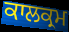
ਕਾਲਕ੍ਰਮ